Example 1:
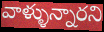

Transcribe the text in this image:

వాళ్ళున్నారని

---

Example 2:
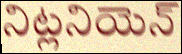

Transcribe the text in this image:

నిట్లనియెన్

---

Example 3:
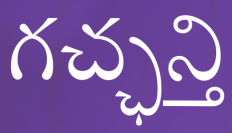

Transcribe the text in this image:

గచ్ఛన్తి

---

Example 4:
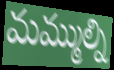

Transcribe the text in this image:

మమ్ముల్ని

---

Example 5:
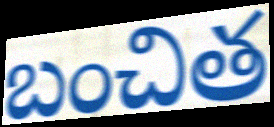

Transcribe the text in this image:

బంచిత